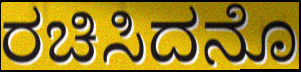
ರಚಿಸಿದನೊ